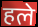
हले